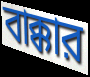
বাক্কার